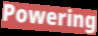
Powering